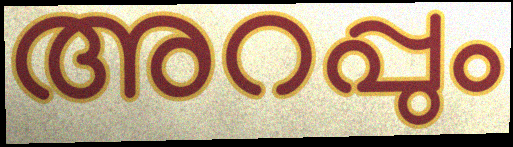
അറപ്പും